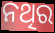
ନଥିର